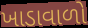
ખાડાવાળો